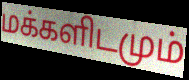
மக்களிடமும்